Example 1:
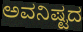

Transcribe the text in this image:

ಅವನಿಷ್ಟದ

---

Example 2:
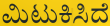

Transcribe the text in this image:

ಮಿಟುಕಿಸಿದೆ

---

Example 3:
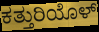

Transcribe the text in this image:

ಕತ್ತುರಿಯೊಳ್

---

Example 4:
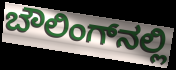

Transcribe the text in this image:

ಬೌಲಿಂಗ್‌ನಲ್ಲಿ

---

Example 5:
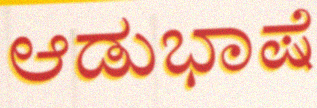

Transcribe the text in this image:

ಆಡುಭಾಷೆ